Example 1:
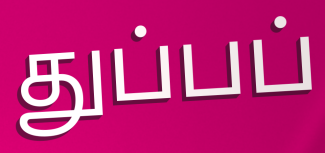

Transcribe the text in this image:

துப்பப்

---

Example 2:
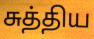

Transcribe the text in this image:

சுத்திய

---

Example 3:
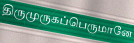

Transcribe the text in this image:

திருமுருகப்பெருமானே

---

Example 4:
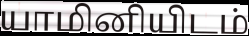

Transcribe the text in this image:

யாமினியிடம்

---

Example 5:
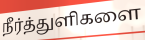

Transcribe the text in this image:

நீர்த்துளிகளை